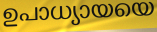
ഉപാധ്യായയെ